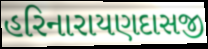
હરિનારાયણદાસજી